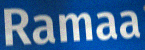
Ramaa